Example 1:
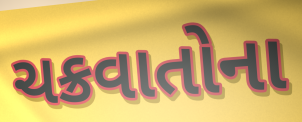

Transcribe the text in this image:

ચક્રવાતોના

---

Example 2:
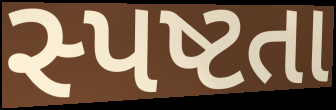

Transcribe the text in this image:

સ્પષ્ટતા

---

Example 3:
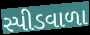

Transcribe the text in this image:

સ્પીડવાળા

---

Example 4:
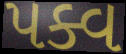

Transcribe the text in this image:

પક્વ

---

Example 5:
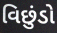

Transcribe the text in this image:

વિછુંડો